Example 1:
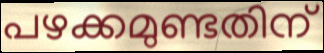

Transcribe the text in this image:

പഴക്കമുണ്ടതിന്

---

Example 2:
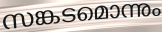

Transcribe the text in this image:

സങ്കടമൊന്നും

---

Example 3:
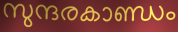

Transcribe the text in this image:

സുന്ദരകാണ്ഡം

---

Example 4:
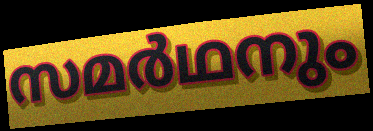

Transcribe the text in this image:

സമർഥനും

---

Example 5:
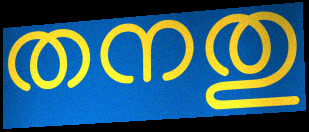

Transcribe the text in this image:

തനതു